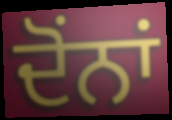
ਦੋਂਨਾਂ